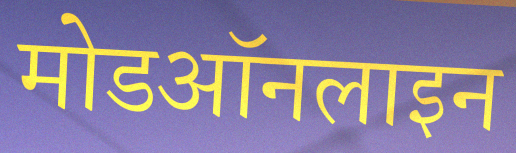
मोडऑनलाइन